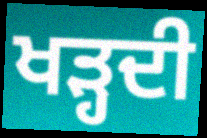
ਖੜ੍ਹਦੀ